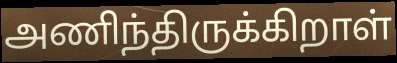
அணிந்திருக்கிறாள்